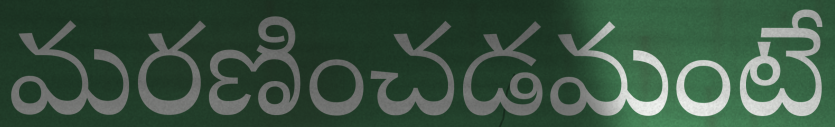
మరణించడమంటే